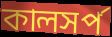
কালসর্প